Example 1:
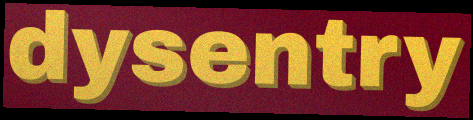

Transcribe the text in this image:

dysentry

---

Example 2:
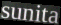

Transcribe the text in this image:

sunita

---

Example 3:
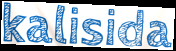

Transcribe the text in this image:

kalisida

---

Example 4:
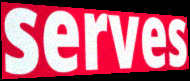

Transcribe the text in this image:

serves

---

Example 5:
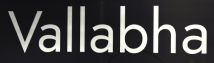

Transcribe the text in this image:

Vallabha